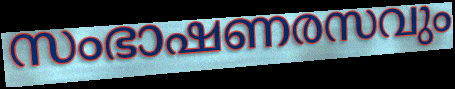
സംഭാഷണരസവും